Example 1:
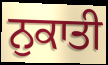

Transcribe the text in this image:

ਨੁਕਾਤੀ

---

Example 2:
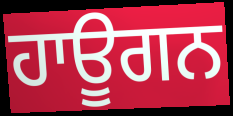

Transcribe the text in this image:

ਹਾਊਗਨ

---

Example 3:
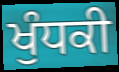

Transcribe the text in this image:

ਖੁੰਧਕੀ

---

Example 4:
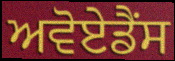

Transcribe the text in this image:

ਅਵੋਏਡੈਂਸ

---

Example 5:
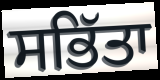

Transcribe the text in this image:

ਸਭਿੱਤਾ